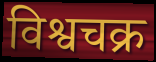
विश्वचक्र